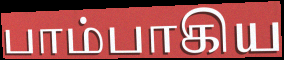
பாம்பாகிய